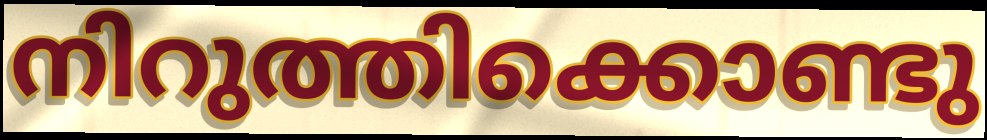
നിറുത്തിക്കൊണ്ടു